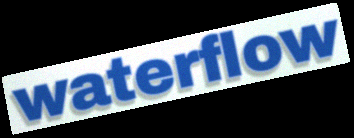
waterflow